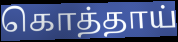
கொத்தாய்